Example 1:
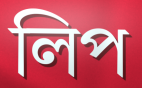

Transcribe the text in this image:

লিপ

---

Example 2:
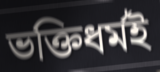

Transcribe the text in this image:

ভক্তিধৰ্মই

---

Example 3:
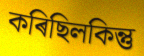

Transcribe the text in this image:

কৰিছিলকিন্তু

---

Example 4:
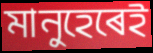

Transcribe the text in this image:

মানুহেৰেই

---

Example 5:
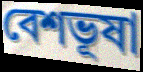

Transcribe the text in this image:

বেশভূষা